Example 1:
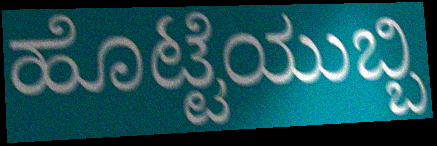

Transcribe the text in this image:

ಹೊಟ್ಟೆಯುಬ್ಬಿ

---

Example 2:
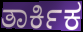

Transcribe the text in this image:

ತಾರ್ಕಿಕ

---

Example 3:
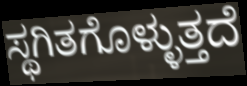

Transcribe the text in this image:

ಸ್ಥಗಿತಗೊಳ್ಳುತ್ತದೆ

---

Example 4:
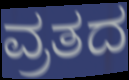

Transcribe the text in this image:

ವ್ರತದ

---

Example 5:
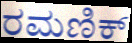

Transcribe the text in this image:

ರಮಣಿಕ್